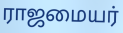
ராஜமையர்